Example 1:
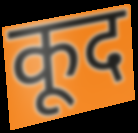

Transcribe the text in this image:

कूद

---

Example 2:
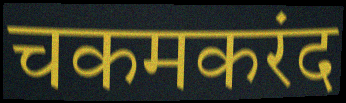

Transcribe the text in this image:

चकमकरंद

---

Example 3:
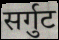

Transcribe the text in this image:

सर्गुट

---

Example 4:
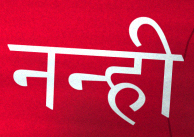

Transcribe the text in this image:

नन्ही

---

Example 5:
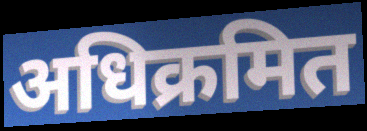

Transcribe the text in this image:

अधिक्रमित